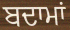
ਬਦਾਮਾਂ